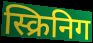
स्क्रिनिग